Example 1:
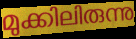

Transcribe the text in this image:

മുക്കിലിരുന്നു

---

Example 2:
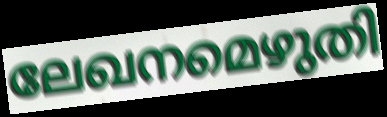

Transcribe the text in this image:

ലേഖനമെഴുതി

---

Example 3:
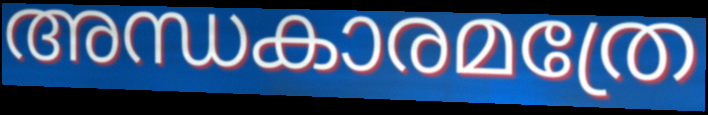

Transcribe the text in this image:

അന്ധകാരമത്രേ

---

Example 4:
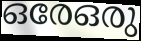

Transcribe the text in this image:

ഒരേഒരു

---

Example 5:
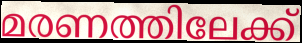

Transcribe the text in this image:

മരണത്തിലേക്ക്